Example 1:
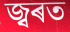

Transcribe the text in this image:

জ্বৰত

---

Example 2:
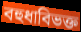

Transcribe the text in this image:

বহুধাবিভক্ত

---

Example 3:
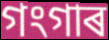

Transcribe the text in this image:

গংগাৰ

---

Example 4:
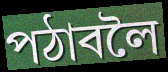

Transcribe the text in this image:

পঠাবলৈ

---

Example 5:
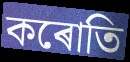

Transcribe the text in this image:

কৰোতি